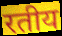
रतीय